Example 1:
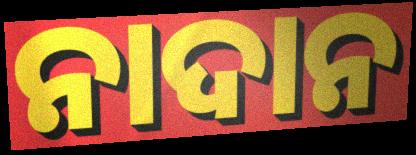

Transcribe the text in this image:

ନାଦାନ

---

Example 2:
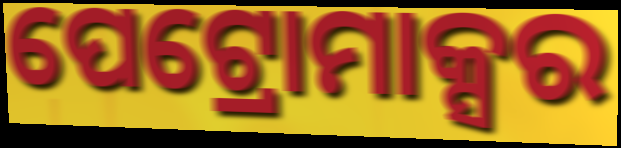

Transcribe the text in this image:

ପେଟ୍ରୋମାକ୍ସର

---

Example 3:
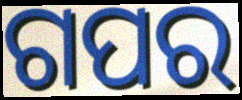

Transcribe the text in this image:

ଗପର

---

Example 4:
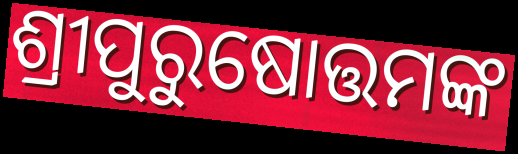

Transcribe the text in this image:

ଶ୍ରୀପୁରୁଷୋତ୍ତମଙ୍କ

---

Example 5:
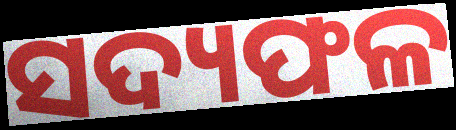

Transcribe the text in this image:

ସଦ୍ୟଫଳ